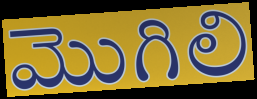
మొగిలి